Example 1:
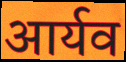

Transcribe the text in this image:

आर्यव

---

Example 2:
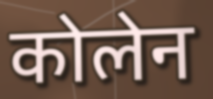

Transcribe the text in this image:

कोलेन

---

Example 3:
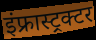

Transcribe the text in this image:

इंफ्रास्ट्रक्टर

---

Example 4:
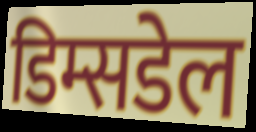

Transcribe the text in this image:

डिम्सडेल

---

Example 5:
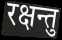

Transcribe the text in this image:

रक्षन्तु